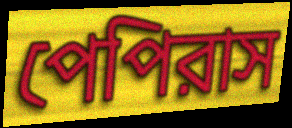
পেপিরাস